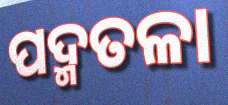
ପଦ୍ମତଳା